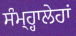
ਸੰਮ੍ਹ੍ਹਾਲੇਹਾਂ